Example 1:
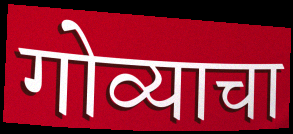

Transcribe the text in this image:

गोव्याचा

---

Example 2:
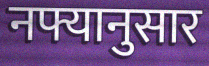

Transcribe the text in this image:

नफ्यानुसार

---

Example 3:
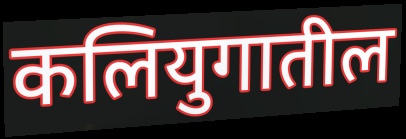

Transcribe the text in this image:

कलियुगातील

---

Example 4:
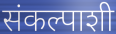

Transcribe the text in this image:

संकल्पाशी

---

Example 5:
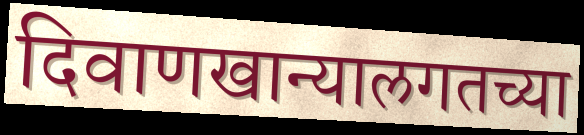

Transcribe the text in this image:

दिवाणखान्यालगतच्या